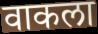
वाकला